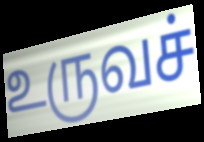
உருவச்